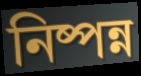
নিষ্পন্ন